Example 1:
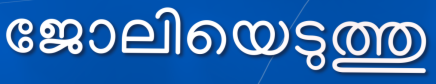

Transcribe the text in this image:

ജോലിയെടുത്തു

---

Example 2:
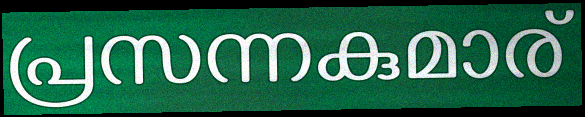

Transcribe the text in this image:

പ്രസന്നകുമാര്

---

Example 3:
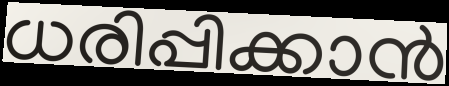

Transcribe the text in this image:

ധരിപ്പിക്കാൻ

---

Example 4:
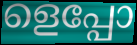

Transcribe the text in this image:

ളെപ്പോ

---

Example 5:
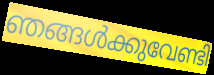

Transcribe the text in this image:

ഞങ്ങൾക്കുവേണ്ടി